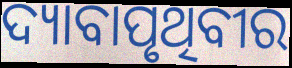
ଦ୍ୟାବାପୃଥିବୀର